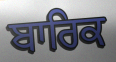
ਬਾਰਿਕ